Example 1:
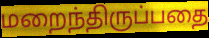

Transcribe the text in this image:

மறைந்திருப்பதை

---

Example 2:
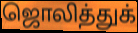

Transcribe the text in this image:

ஜொலித்துக்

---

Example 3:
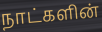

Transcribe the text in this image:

நாட்களின்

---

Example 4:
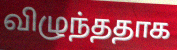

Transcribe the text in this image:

விழுந்ததாக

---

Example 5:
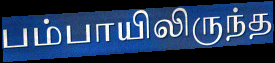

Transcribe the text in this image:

பம்பாயிலிருந்த